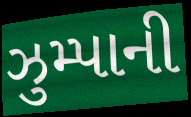
ઝુમ્પાની